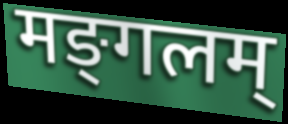
मङ्गलम्